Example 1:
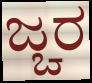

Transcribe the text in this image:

ಜ್ಚರ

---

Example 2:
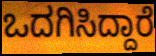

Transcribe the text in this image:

ಒದಗಿಸಿದ್ದಾರೆ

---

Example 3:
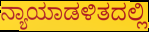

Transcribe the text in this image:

ನ್ಯಾಯಾಡಳಿತದಲ್ಲಿ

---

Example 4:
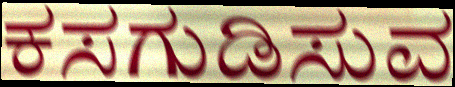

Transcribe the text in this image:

ಕಸಗುಡಿಸುವ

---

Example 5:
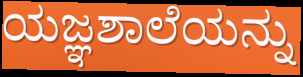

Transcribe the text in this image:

ಯಜ್ಞಶಾಲೆಯನ್ನು